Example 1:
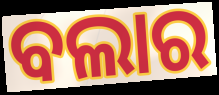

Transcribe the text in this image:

ବଲାର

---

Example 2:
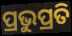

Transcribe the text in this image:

ପ୍ରଭୁପ୍ରତି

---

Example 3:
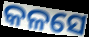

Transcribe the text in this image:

କଳସେ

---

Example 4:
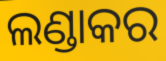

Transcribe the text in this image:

ଲଣ୍ଡାକର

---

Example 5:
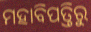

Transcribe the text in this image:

ମହାବିପତ୍ତିରୁ